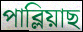
পাব্লিয়াছ